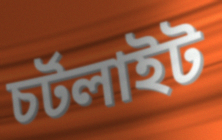
চর্টলাইট